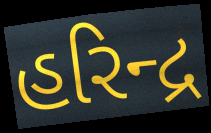
હરિન્દ્ર